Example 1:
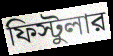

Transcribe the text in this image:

ফিস্টুলার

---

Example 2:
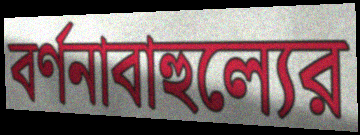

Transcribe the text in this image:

বর্ণনাবাহুল্যের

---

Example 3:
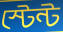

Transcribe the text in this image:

স্টেন্ট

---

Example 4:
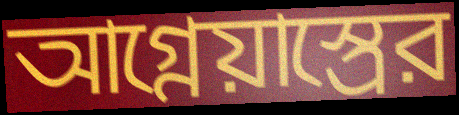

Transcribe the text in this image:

আগ্নেয়াস্ত্রের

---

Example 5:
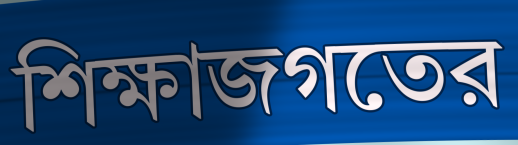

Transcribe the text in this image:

শিক্ষাজগতের